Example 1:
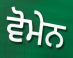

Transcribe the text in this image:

ਵੋਮੇਨ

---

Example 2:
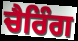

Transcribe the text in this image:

ਚੈਰਿੰਗ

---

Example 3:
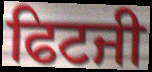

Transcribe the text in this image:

ਫਿਟਜੀ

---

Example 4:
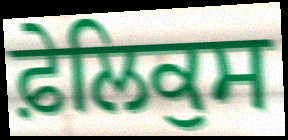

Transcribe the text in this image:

ਫ਼ੇਲਿਕੁਸ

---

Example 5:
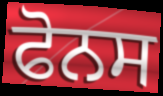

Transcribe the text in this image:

ਫੋਨਸ